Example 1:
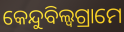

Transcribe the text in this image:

କେନ୍ଦୁବିଲ୍ଵଗ୍ରାମେ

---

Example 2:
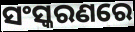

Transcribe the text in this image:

ସଂସ୍କରଣରେ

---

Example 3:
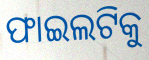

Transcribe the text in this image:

ଫାଇଲଟିକୁ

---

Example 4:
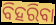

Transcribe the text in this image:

ବିହରିବା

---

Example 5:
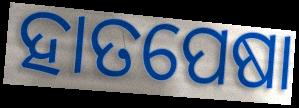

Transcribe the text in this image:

ହାତପେଷା